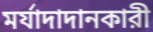
মর্যাদাদানকারী